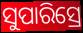
ସୁପାରିସ୍ରେ